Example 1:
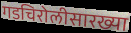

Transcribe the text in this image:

गडचिरोलीसारख्या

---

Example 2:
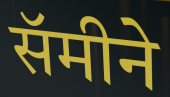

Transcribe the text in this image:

सॅमीने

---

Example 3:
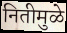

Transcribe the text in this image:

नितीमुळे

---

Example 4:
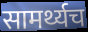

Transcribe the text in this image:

सामर्थ्यच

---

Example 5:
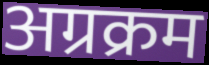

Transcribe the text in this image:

अग्रक्रम